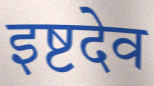
इष्टदेव